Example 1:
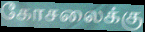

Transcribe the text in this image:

கோசலைக்கு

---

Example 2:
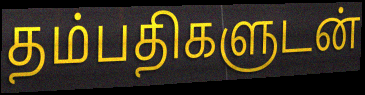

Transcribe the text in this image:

தம்பதிகளுடன்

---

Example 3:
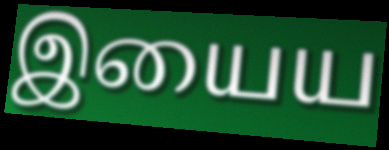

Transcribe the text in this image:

இயைய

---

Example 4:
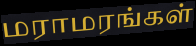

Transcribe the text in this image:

மராமரங்கள்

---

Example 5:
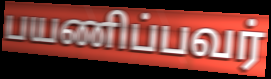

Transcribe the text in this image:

பயணிப்பவர்